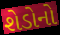
શેડોનો